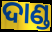
ଦାଣ୍ଡ